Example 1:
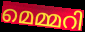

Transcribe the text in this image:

മെമ്മറി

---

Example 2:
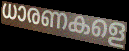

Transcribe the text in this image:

ധാരണകളെ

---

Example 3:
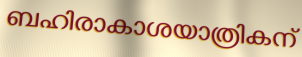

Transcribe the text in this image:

ബഹിരാകാശയാത്രികന്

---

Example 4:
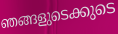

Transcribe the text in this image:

ഞങ്ങളുടെക്കുടെ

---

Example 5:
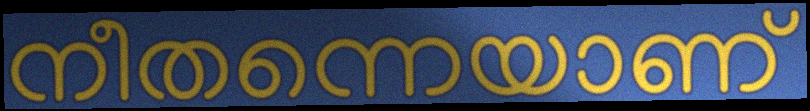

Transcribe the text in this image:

നീതന്നെയാണ്